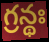
గ్రన్థః